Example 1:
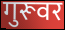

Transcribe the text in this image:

गुरूवर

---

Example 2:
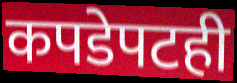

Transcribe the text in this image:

कपडेपटही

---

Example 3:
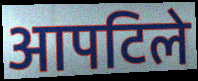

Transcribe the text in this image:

आपटिले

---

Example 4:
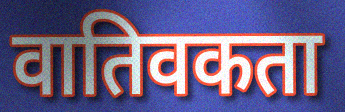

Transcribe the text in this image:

वातिवकता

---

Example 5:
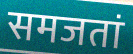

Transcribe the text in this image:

समजतां